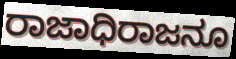
ರಾಜಾಧಿರಾಜನೂ